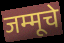
जम्मूचे